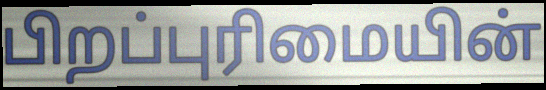
பிறப்புரிமையின்